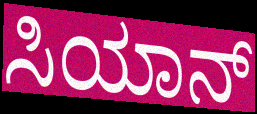
ಸಿಯಾನ್